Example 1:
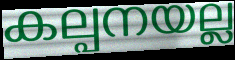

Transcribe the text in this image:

കല്പനയല്ല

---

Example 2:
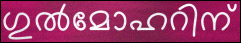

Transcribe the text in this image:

ഗുൽമോഹറിന്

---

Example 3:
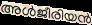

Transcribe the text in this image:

അൾജീരിയൻ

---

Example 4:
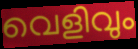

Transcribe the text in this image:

വെളിവും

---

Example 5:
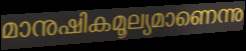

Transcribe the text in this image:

മാനുഷികമൂല്യമാണെന്നു